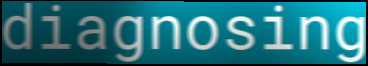
diagnosing